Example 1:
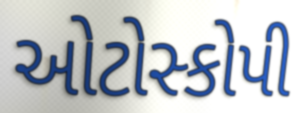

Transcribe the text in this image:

ઓટોસ્કોપી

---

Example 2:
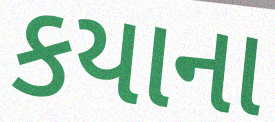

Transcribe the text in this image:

કયાના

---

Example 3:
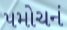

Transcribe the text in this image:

પમોચનં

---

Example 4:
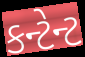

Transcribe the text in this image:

કન્ટેન્ટ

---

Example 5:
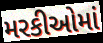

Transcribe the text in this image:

મરકીઓમાં